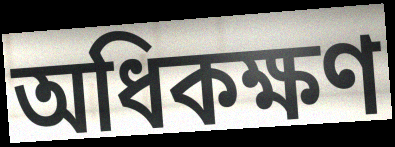
অধিকক্ষণ